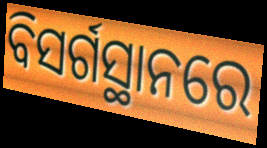
ବିସର୍ଗସ୍ଥାନରେ